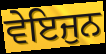
ਵੇਇਜੁਨ